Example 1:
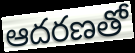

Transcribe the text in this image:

ఆదరణతో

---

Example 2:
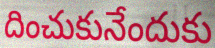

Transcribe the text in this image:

దించుకునేందుకు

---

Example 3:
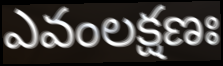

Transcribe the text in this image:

ఎవంలక్షణః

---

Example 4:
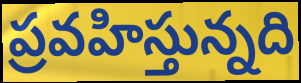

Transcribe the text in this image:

ప్రవహిస్తున్నది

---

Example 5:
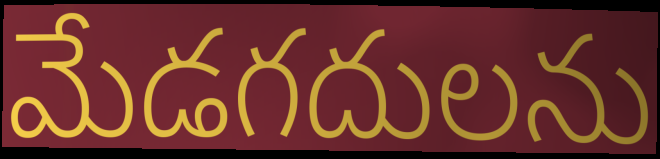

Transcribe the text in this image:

మేడగదులను